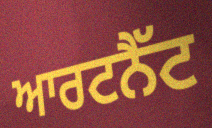
ਆਰਟਨੈੱਟ